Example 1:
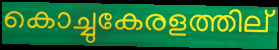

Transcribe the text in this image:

കൊച്ചുകേരളത്തില്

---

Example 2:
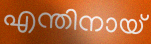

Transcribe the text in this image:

എന്തിനായ്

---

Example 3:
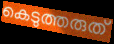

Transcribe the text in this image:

കെടുത്തരുത്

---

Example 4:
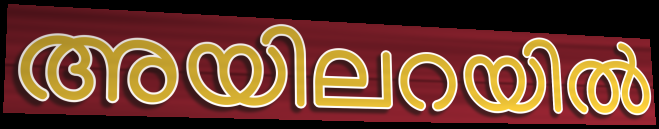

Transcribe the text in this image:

അയിലറയിൽ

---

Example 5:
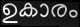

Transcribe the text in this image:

ഉകാരം